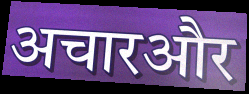
अचारऔर